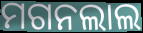
ମଗନଲାଲ